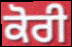
ਕੋਰੀ